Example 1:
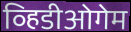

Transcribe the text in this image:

व्हिडीओगेम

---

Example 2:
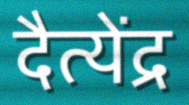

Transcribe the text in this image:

दैत्येंद्र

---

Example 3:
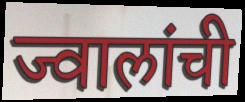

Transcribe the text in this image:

ज्वालांची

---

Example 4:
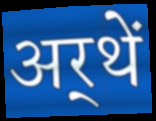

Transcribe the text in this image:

अर्थें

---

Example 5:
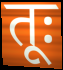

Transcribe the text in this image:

तूः